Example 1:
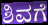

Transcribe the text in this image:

ಶಿವಗೆ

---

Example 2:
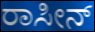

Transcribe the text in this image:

ರಾಸೀನ್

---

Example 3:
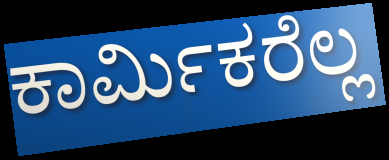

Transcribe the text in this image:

ಕಾರ್ಮಿಕರೆಲ್ಲ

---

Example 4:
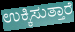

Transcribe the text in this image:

ಉಕ್ಕಿಸುತ್ತಾರೆ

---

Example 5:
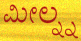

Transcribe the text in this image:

ಮೀಲ್ನ್ನ